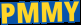
PMMY